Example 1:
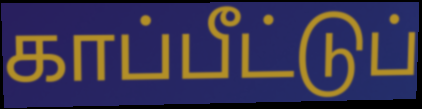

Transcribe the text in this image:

காப்பீட்டுப்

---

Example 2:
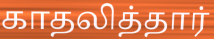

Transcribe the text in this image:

காதலித்தார்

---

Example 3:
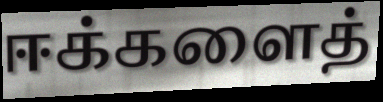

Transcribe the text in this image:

ஈக்களைத்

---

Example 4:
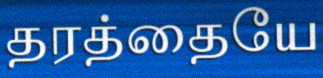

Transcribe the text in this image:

தரத்தையே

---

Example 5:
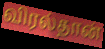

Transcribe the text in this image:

விரல்தான்